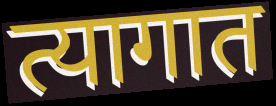
त्यागात